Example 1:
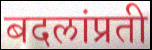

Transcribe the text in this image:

बदलांप्रती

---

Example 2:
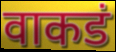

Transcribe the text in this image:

वाकडं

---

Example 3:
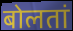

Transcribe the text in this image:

बोलतां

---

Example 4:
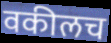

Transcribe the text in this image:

वकीलच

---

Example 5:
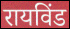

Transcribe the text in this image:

रायविंड